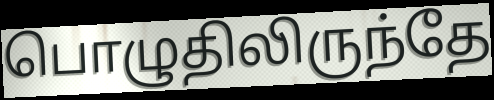
பொழுதிலிருந்தே